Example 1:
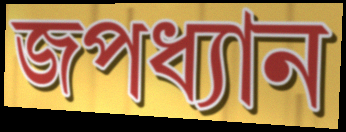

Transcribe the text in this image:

জপধ্যান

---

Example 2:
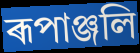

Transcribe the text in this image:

ৰূপাঞ্জলি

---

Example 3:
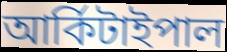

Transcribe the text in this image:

আৰ্কিটাইপাল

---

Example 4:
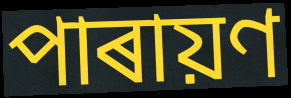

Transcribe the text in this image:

পাৰায়ণ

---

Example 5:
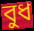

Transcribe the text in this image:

বুধ